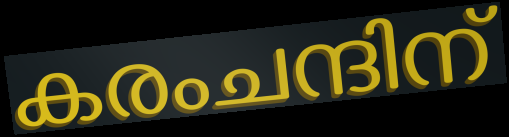
കരംചന്ദിന്